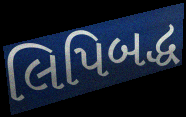
લિપિબદ્ધ